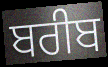
ਬਰੀਬ